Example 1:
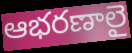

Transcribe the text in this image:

ఆభరణాలై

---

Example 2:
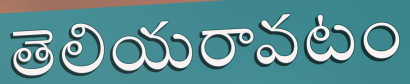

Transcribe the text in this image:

తెలియరావటం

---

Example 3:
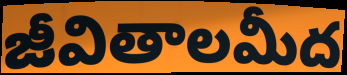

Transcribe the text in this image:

జీవితాలమీద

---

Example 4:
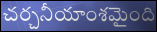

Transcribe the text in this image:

చర్చనీయాంశమైంది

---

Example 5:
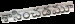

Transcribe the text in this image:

శాసించడమూ